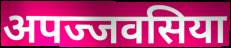
अपज्जवसिया